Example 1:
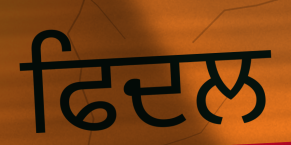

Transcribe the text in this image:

ਫਿਦਲ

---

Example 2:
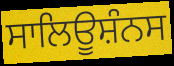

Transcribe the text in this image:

ਸਾਲਿਊਸ਼ੰਨਸ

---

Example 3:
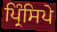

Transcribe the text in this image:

ਪ੍ਰਿੰਸਿਪੇ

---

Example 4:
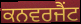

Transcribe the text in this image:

ਕਨਵਰਜੈਂਟ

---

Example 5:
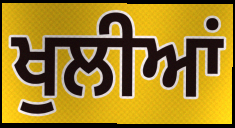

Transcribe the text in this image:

ਖੁਲੀਆਂ